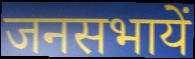
जनसभायें